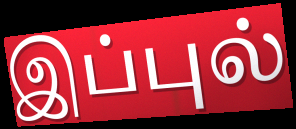
இப்புல்